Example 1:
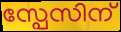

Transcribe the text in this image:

സ്പേസിന്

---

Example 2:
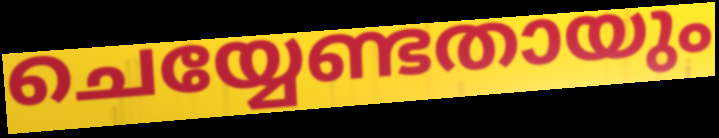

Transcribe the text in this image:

ചെയ്യേണ്ടതായും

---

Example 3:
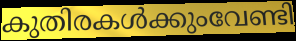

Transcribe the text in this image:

കുതിരകൾക്കുംവേണ്ടി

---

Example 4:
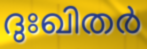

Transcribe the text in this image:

ദുഃഖിതർ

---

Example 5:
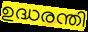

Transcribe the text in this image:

ഉദ്ധരന്തി